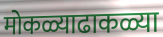
मोकळ्याढाकळ्या